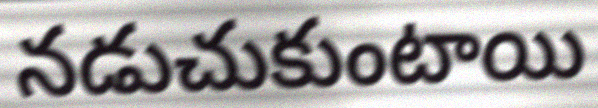
నడుచుకుంటాయి